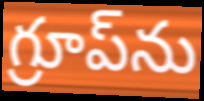
గ్రూప్‌ను